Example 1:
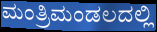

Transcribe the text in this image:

ಮಂತ್ರಿಮಂಡಲದಲ್ಲಿ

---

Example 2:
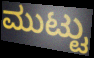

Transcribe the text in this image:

ಮುಟ್ಟು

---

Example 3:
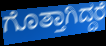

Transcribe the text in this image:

ಗೊತ್ತಾಗಿದ್ದರೆ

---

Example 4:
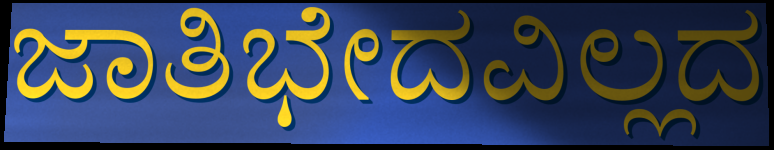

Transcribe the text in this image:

ಜಾತಿಭೇದವಿಲ್ಲದ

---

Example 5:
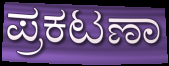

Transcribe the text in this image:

ಪ್ರಕಟಣಾ